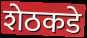
शेठकडे